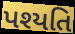
પશ્યતિ